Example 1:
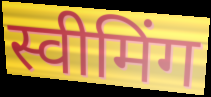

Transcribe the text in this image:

स्वीमिंग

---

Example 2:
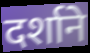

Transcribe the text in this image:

दर्शाने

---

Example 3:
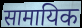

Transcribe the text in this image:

सामायिक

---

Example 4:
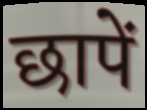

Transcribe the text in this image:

छापें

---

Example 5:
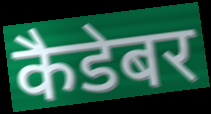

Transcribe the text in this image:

कैडेबर